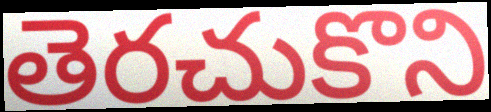
తెరచుకొని